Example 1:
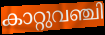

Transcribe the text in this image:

കാറ്റുവഞ്ചി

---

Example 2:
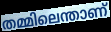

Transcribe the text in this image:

തമ്മിലെന്താണ്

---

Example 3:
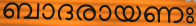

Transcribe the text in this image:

ബാദരായണഃ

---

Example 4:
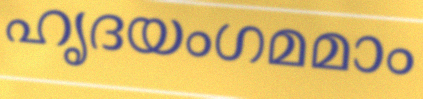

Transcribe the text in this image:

ഹൃദയംഗമമാം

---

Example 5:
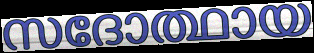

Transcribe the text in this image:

സദോത്ഥായ